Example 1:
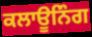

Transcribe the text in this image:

ਕਲਾਊਨਿੰਗ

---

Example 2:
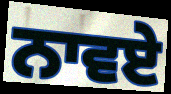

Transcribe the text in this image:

ਨਾਵਏ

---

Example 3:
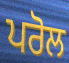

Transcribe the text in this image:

ਪਰੋਲ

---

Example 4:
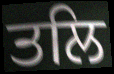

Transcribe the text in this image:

ਤਲਿ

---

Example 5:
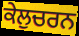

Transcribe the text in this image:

ਕੇਲੁਚਰਨ